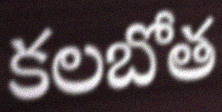
కలబోత